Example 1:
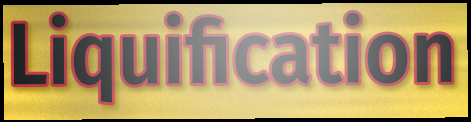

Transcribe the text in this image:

Liquification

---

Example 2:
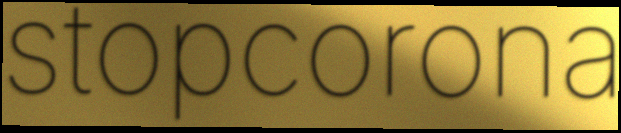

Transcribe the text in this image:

stopcorona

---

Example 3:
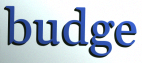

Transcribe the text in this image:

budge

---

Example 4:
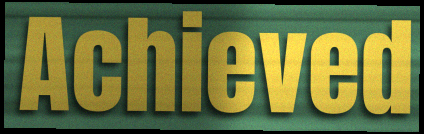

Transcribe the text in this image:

Achieved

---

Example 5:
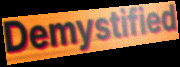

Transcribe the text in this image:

Demystified